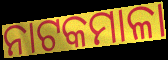
ନାଟକମାଳା